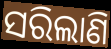
ସରିଲାଣି